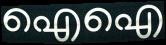
ഐഐ